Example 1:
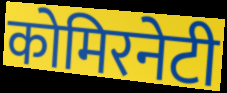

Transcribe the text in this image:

कोमिरनेटी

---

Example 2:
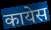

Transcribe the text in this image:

कायेस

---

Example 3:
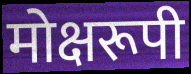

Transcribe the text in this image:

मोक्षरूपी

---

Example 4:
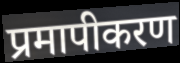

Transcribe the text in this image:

प्रमापीकरण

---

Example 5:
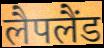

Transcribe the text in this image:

लैपलैंड